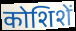
कोशिशें